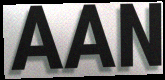
AAN